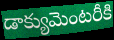
డాక్యుమెంటరీకి